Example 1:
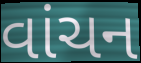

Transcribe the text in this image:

વાંચન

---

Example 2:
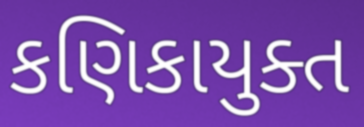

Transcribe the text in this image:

કણિકાયુક્ત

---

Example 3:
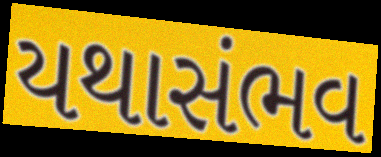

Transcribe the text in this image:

યથાસંભવ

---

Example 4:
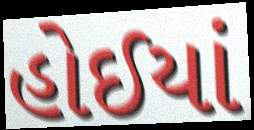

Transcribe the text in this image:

હોઈયાં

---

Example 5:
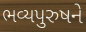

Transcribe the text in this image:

ભવ્યપુરુષને